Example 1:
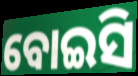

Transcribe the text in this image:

ବୋଇସି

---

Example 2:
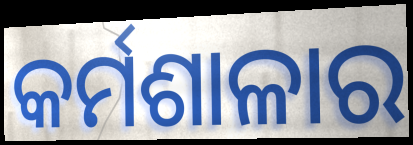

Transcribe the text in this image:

କର୍ମଶାଳାର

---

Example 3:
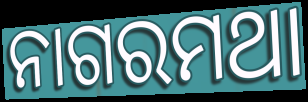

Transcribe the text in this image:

ନାଗରମଥା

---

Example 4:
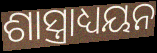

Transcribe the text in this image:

ଶାସ୍ତ୍ରାଧ୍ୟୟନ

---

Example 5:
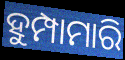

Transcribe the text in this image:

ହୁମ୍ପାମାରି